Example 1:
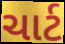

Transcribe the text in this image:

ચાર્ટ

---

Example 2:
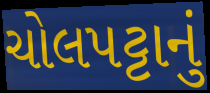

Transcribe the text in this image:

ચોલપટ્ટાનું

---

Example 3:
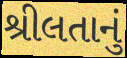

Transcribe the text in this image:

શ્રીલતાનું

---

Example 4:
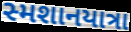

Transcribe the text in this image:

સ્મશાનયાત્રા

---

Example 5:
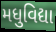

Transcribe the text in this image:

મધુવિદ્યા